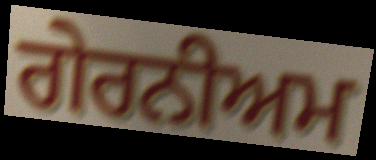
ਗੇਰਨੀਅਮ